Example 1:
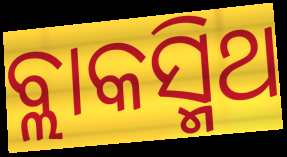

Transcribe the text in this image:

ବ୍ଲାକସ୍ମିଥ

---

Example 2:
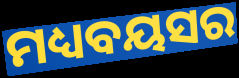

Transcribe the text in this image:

ମଧ୍ୟବୟସର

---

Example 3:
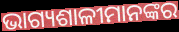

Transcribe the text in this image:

ଭାଗ୍ୟଶାଳୀମାନଙ୍କର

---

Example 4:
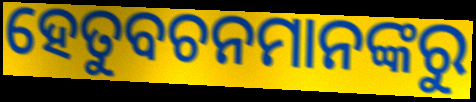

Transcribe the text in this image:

ହେତୁବଚନମାନଙ୍କରୁ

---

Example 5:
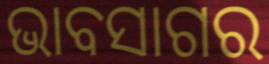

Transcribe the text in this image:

ଭାବସାଗର